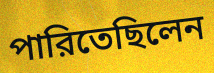
পারিতেছিলেন